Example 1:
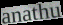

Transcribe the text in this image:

anathu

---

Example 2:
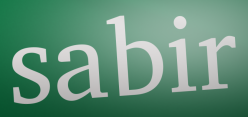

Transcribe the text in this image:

sabir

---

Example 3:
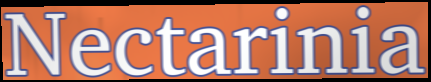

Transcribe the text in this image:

Nectarinia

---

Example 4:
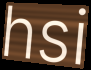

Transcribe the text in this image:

hsi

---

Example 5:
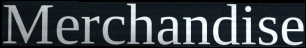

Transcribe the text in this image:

Merchandise